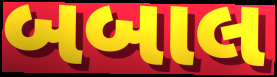
બબાલ